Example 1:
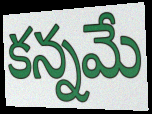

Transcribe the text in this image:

కన్నమే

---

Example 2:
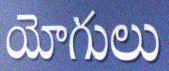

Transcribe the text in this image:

యోగులు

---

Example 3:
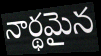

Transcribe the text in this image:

నార్థమైన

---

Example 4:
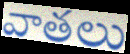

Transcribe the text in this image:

వాతలు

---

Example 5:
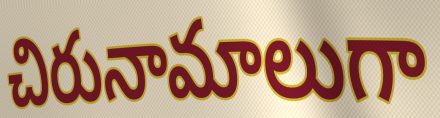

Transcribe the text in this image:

చిరునామాలుగా